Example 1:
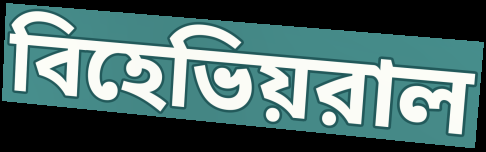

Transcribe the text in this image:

বিহেভিয়রাল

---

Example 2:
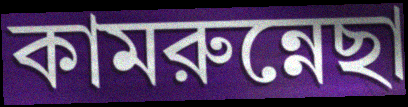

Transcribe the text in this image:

কামরুন্নেছা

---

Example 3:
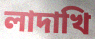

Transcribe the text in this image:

লাদাখি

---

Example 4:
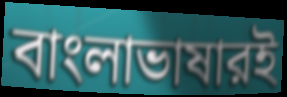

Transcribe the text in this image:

বাংলাভাষারই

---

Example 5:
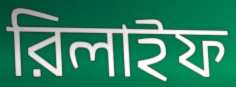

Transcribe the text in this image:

রিলাইফ